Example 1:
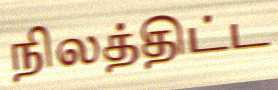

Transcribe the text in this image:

நிலத்திட்ட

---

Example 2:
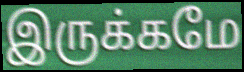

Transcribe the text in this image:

இருக்கமே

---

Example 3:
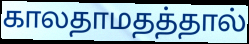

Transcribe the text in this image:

காலதாமதத்தால்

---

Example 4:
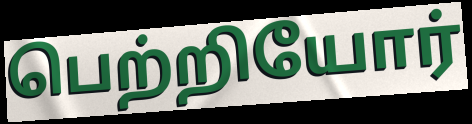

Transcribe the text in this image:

பெற்றியோர்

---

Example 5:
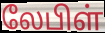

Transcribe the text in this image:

லேபிள்